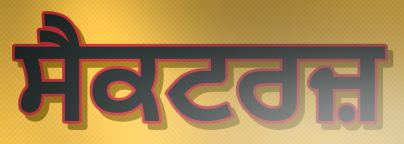
ਸੈਕਟਰਜ਼